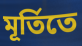
মূর্তিতে